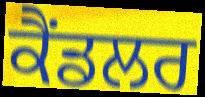
ਕੈਂਡਲਰ